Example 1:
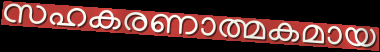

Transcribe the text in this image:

സഹകരണാത്മകമായ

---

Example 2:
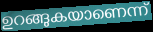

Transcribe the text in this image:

ഉറങ്ങുകയാണെന്ന്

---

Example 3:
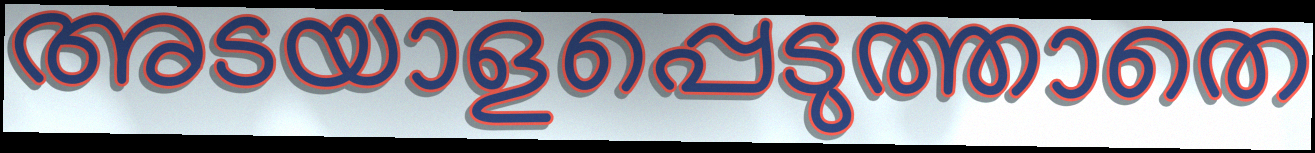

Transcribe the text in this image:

അടയാളപ്പെടുത്താതെ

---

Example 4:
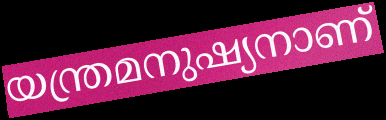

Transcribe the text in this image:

യന്ത്രമനുഷ്യനാണ്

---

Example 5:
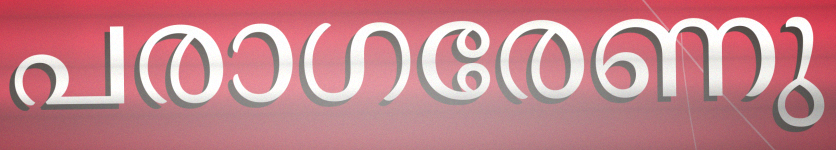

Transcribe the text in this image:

പരാഗരേണു